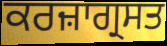
ਕਰਜ਼ਾਗ੍ਰਸਤ